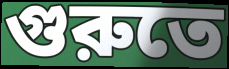
গুরুতে